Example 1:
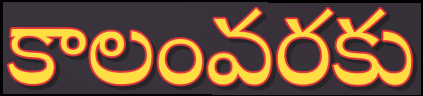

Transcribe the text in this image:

కాలంవరకు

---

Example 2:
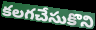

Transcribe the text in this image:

కలగచేసుకొని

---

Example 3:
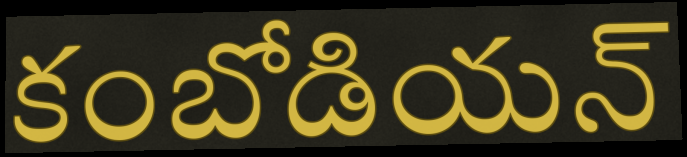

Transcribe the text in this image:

కంబోడియన్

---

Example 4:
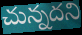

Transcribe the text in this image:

చున్నదని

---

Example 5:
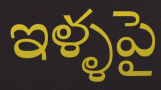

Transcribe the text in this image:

ఇళ్ళపై